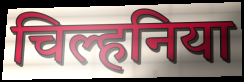
चिल्हनिया